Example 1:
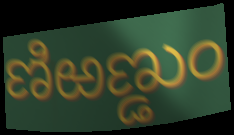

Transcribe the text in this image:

ణిఱణ్డుం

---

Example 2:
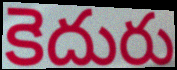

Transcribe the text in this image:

కెదురు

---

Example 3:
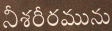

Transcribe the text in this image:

నీశరీరమును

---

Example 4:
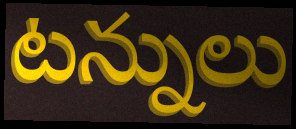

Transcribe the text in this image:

టన్నులు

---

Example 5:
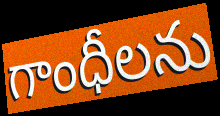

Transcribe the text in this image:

గాంధీలను